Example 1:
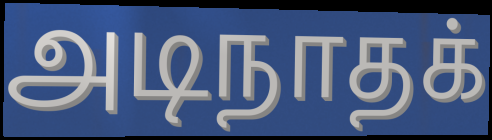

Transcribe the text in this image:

அடிநாதக்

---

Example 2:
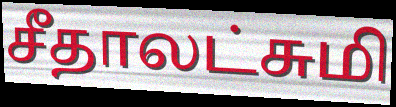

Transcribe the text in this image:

சீதாலட்சுமி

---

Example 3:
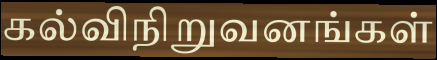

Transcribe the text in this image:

கல்விநிறுவனங்கள்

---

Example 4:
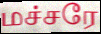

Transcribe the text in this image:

மச்சரே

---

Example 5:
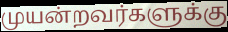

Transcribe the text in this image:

முயன்றவர்களுக்கு